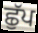
ਛੁੱਪ